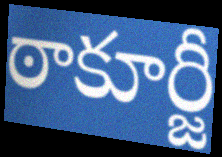
ఠాకూర్జీ